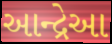
આન્દ્રેઆ